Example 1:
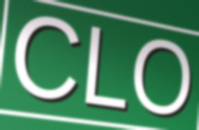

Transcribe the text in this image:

CLO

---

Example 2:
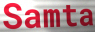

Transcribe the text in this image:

Samta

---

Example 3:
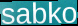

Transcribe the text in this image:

sabko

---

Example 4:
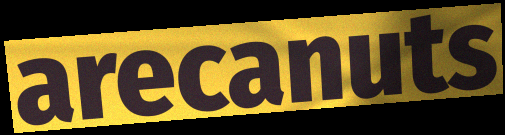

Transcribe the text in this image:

arecanuts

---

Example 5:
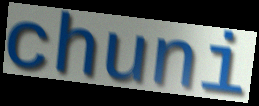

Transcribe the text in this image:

chuni